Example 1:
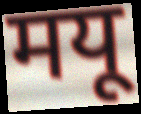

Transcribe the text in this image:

मयू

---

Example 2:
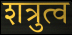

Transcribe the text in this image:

शत्रुत्व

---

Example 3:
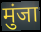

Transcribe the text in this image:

मुंजा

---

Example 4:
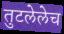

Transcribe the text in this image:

तुटलेलेच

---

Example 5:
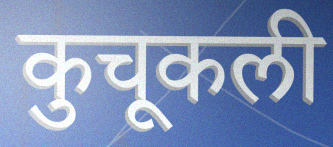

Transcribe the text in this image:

कुचूकली